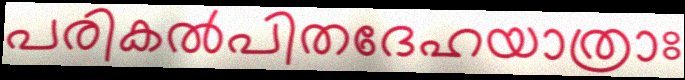
പരികൽപിതദേഹയാത്രാഃ